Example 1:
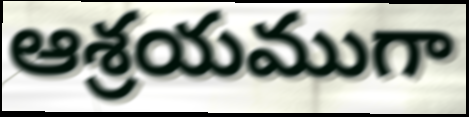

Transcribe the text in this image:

ఆశ్రయముగా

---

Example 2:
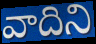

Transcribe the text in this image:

వాదిని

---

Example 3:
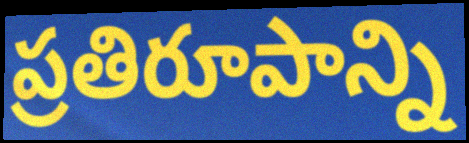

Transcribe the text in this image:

ప్రతిరూపాన్ని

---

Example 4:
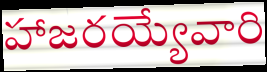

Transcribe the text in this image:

హాజరయ్యేవారి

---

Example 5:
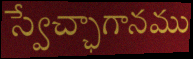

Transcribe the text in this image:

స్వేచ్ఛాగానము